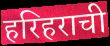
हरिहराची